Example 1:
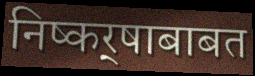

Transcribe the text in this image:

निष्कर्षाबाबत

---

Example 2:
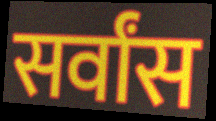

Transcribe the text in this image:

सर्वांस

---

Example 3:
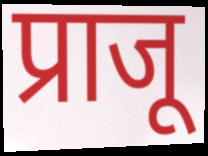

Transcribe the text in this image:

प्राजू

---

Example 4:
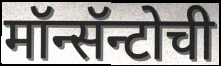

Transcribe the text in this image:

मॉन्सॅन्टोची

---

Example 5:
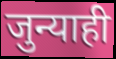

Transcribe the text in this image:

जुन्याही